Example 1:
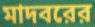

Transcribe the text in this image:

মাদবরের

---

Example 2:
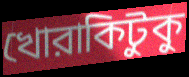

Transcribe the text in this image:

খোরাকিটুকু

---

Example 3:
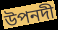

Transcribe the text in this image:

উপনদী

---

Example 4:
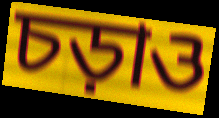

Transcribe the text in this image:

চড়াও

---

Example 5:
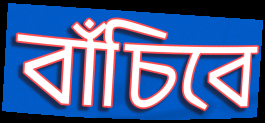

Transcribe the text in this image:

বাঁচিবে